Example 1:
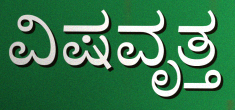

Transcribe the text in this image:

ವಿಷವೃತ್ತ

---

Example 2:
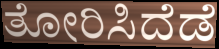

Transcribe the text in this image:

ತೋರಿಸಿದೆಡೆ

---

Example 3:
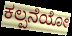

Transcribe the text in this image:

ಕಲ್ಪನೆಯೋ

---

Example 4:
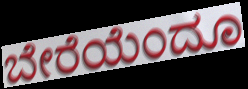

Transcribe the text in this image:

ಬೇರೆಯೆಂದೂ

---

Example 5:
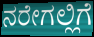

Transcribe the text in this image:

ನರೇಗಲ್ಲಿಗೆ